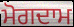
ਮੋਗਦਾਮ